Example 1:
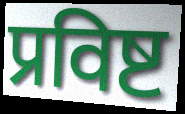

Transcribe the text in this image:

प्रविष्ट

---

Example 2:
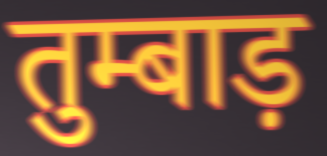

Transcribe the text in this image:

तुम्बाड़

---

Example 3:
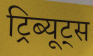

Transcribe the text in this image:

ट्रिब्यूट्स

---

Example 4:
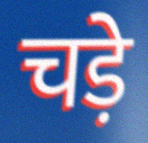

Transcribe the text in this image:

चड़े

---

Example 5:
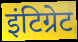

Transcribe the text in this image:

इंटिग्रेट